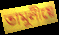
তামুলীয়ে